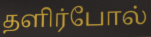
தளிர்போல்